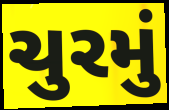
ચુરમું